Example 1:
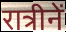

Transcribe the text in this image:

रात्रीनें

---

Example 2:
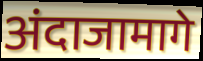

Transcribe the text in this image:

अंदाजामागे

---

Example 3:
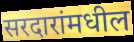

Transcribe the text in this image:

सरदारांमधील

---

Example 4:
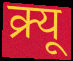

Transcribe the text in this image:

क्र्यू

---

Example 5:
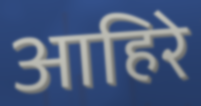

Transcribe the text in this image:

आहिरे